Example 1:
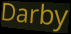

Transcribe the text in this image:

Darby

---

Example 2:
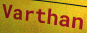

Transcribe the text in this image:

Varthan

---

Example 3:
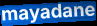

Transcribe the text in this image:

mayadane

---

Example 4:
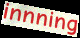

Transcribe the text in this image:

innning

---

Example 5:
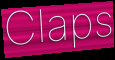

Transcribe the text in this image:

Claps